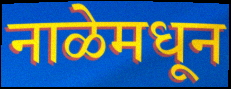
नाळेमधून